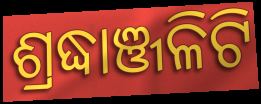
ଶ୍ରଦ୍ଧାଞ୍ଜଳିଟି